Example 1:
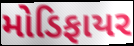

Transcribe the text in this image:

મોડિફાયર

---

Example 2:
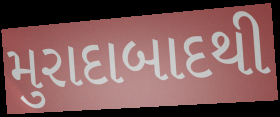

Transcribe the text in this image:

મુરાદાબાદથી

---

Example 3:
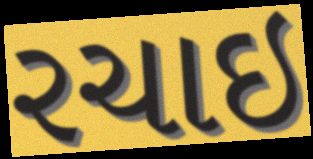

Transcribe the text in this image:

રચાઇ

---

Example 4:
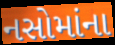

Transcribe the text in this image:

નસોમાંના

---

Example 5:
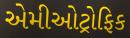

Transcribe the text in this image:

એમીઓટ્રોફિક